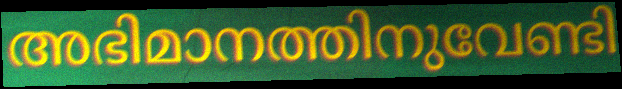
അഭിമാനത്തിനുവേണ്ടി